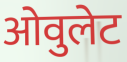
ओवुलेट